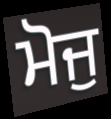
ਮੋਜੁ